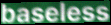
baseless